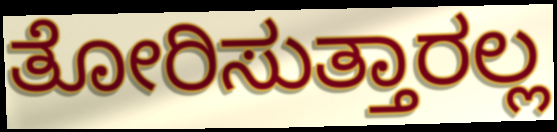
ತೋರಿಸುತ್ತಾರಲ್ಲ